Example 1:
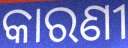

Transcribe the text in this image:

କାରଣୀ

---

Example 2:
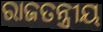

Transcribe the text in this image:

ରାଜତନ୍ତ୍ରୀୟ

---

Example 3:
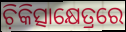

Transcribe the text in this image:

ଚ଼ିକିତ୍ସାକ୍ଷେତ୍ରରେ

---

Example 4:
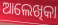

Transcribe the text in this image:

ଆଲେଖିକା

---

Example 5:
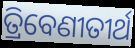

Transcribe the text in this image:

ତ୍ରିବେଣୀତୀର୍ଥ